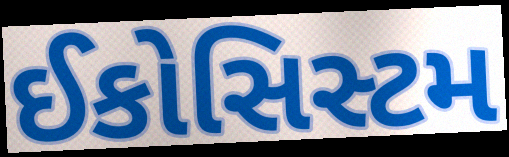
ઈકોસિસ્ટમ